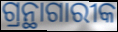
ଗ୍ରନ୍ଥାଗାରୀକ